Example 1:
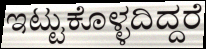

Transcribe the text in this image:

ಇಟ್ಟುಕೊಳ್ಳದಿದ್ದರೆ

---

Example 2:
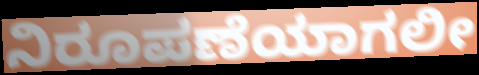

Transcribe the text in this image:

ನಿರೂಪಣೆಯಾಗಲೀ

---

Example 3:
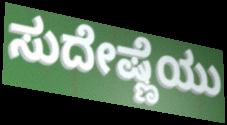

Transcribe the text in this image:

ಸುದೇಷ್ಣೆಯು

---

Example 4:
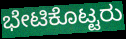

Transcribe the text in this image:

ಭೇಟಿಕೊಟ್ಟರು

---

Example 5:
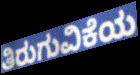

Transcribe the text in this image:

ತಿರುಗುವಿಕೆಯ